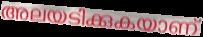
അലയടിക്കുകയാണ്